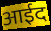
आईद